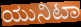
ಯುನಿಟಾ